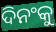
ଦିନଂକୁ